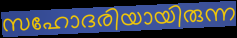
സഹോദരിയായിരുന്ന